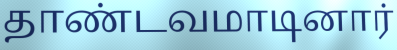
தாண்டவமாடினார்